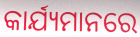
କାର୍ଯ୍ୟମାନରେ